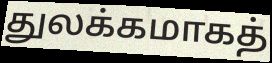
துலக்கமாகத்